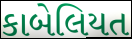
કાબેલિયત